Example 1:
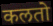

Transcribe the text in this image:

कलतो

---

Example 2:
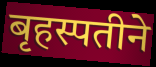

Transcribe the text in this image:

बृहस्पतीने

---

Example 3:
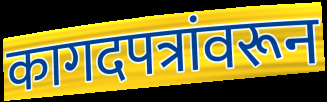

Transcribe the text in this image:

कागदपत्रांवरून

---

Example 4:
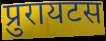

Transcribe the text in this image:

प्रुरायटस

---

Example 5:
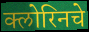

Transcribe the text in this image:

क्लोरिनचे